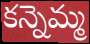
కన్నెమ్మ